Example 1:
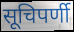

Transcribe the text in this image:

सूचिपर्णी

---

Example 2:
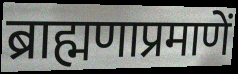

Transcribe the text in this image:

ब्राह्मणाप्रमाणें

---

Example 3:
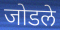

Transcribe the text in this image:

जोडले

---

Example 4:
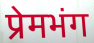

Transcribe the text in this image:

प्रेमभंग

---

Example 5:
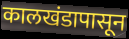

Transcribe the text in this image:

कालखंडापासून